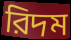
রিদম